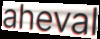
aheval